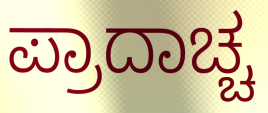
ಪ್ರಾದಾಚ್ಚ